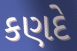
કણદે